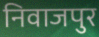
निवाजपुर